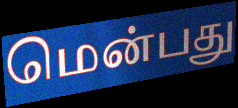
மென்பது